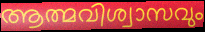
ആത്മവിശ്വാസവും